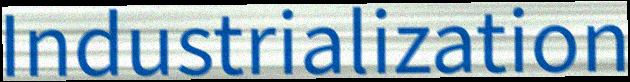
Industrialization